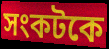
সংকটকে